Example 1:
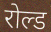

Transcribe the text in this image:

रोल्ड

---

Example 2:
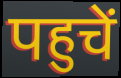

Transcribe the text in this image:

पहुचें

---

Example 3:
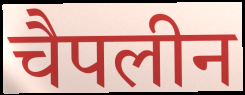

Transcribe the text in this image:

चैपलीन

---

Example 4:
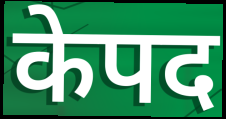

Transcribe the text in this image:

केपद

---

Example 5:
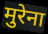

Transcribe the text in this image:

मुरेना